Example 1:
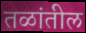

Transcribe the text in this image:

तळांतील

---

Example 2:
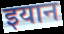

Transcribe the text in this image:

इयान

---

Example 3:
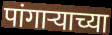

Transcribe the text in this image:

पांगार्‍याच्या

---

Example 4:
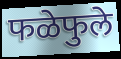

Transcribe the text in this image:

फळेफुले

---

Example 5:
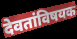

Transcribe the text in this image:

देवतांविषयक